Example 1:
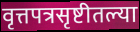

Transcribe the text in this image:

वृत्तपत्रसृष्टीतल्या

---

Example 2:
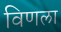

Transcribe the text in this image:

विणला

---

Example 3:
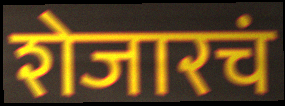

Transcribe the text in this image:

शेजारचं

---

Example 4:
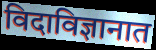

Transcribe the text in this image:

विदाविज्ञानात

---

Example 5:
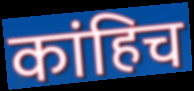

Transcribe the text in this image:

कांहिच